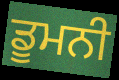
ਡੂਮਨੀ